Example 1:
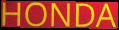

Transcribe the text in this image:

HONDA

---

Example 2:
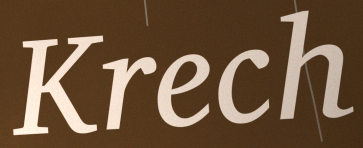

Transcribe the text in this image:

Krech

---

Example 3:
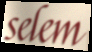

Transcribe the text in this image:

selem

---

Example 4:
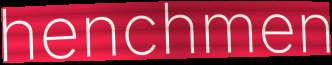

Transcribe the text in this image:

henchmen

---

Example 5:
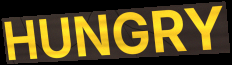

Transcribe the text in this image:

HUNGRY